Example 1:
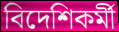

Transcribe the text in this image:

বিদেশিকর্মী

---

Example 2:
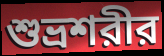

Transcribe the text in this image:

শুভ্রশরীর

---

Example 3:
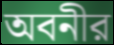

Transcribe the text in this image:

অবনীর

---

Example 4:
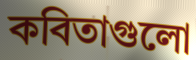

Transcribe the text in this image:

কবিতাগুলো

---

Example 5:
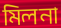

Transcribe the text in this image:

মিলনা